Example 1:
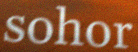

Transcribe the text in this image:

sohor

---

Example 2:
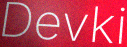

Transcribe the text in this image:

Devki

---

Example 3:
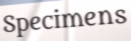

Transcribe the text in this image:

Specimens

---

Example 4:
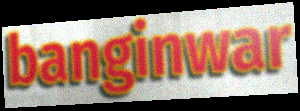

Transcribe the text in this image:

banginwar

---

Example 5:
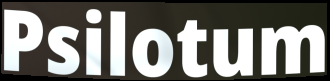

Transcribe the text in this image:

Psilotum